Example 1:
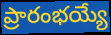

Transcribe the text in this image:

ప్రారంభయ్యే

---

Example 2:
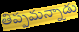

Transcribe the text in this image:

తిప్పమన్నాడు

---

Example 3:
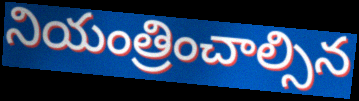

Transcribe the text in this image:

నియంత్రించాల్సిన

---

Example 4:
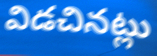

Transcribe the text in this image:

విడచినట్లు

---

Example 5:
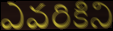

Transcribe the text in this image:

ఎవరికిని